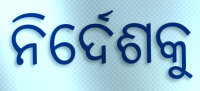
ନିର୍ଦେଶକୁ